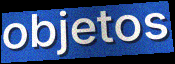
objetos